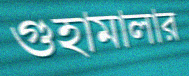
গুহামালার